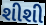
શીશી